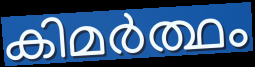
കിമർത്ഥം